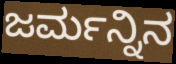
ಜರ್ಮನ್ನಿನ